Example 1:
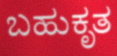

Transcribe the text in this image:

ಬಹುಕೃತ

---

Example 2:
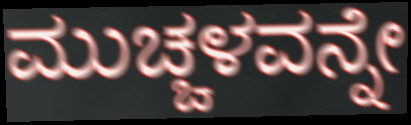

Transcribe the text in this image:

ಮುಚ್ಚಳವನ್ನೇ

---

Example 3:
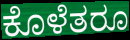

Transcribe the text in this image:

ಕೊಳೆತರೂ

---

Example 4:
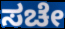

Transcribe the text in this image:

ಸಚೇ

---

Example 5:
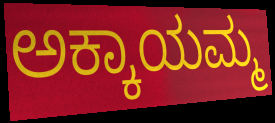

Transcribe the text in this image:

ಅಕ್ಕಾಯಮ್ಮ